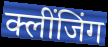
क्लींजिंग